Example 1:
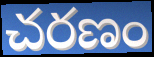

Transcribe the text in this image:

చరణం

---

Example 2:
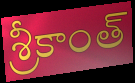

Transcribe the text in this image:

శ్రీకాంత్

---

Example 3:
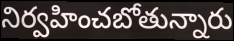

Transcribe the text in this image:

నిర్వహించబోతున్నారు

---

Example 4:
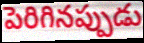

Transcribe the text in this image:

పెరిగినప్పుడు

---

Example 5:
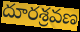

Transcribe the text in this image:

దూరశ్రవణ